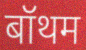
बॉथम